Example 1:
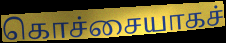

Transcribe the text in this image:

கொச்சையாகச்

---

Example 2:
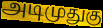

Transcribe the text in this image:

அடிமுதுகு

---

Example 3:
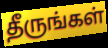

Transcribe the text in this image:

தீருங்கள்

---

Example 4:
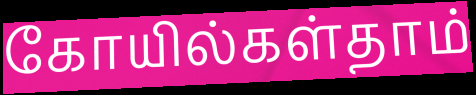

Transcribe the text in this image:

கோயில்கள்தாம்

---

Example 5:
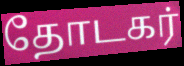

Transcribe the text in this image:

தோடகர்